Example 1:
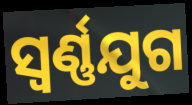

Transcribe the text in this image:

ସ୍ଵର୍ଣ୍ଣଯୁଗ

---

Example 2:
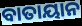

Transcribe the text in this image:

ବାତାୟାନ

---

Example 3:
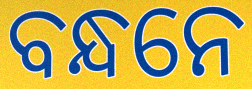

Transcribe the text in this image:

ବନ୍ଧନେ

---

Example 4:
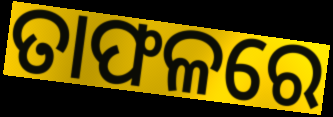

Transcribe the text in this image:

ତାଫଳରେ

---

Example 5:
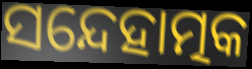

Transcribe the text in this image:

ସନ୍ଦେହାତ୍ମକ